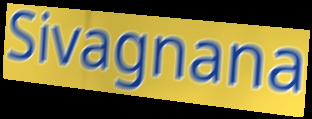
Sivagnana